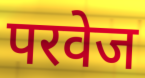
परवेज